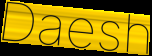
Daesh